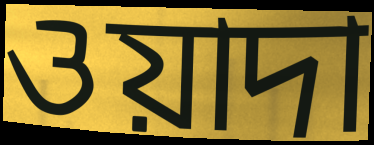
ওয়াদা